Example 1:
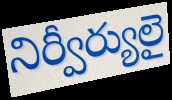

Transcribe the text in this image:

నిర్వీర్యులై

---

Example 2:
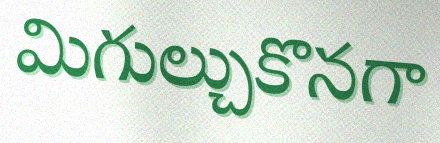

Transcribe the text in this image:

మిగుల్చుకొనగా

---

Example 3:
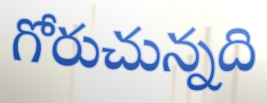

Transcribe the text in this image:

గోరుచున్నది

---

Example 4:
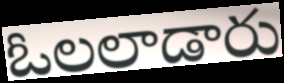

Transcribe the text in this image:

ఓలలాడారు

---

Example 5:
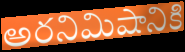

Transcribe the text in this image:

అరనిమిషానికి